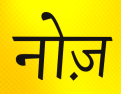
नोज़